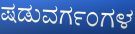
ಷಡುವರ್ಗಂಗಳ